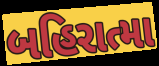
બહિરાત્મા